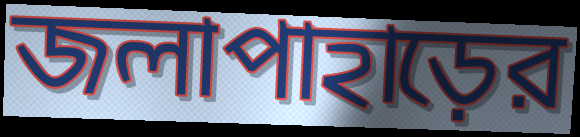
জলাপাহাড়ের